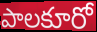
పాలకూరో